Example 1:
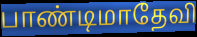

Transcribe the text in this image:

பாண்டிமாதேவி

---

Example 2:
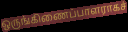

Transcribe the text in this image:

ஒருங்கிணைப்பாளராகச்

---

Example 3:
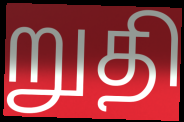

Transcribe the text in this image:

றுதி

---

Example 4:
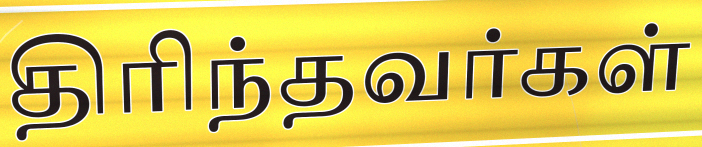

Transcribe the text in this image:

திரிந்தவர்கள்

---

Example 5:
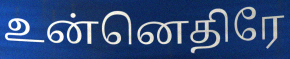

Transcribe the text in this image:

உன்னெதிரே